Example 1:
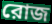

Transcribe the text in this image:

রোজ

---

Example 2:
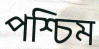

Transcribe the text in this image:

পশ্চিম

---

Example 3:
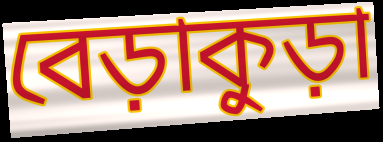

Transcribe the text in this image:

বেড়াকুড়া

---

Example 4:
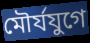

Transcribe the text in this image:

মৌর্যযুগে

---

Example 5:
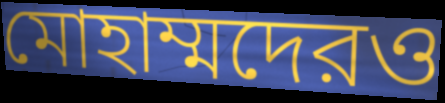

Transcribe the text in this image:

মোহাম্মদেরও